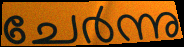
ചേർന്നു